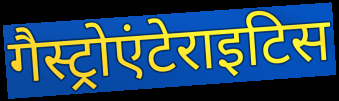
गैस्ट्रोएंटेराइटिस